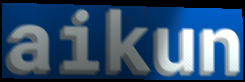
aikun